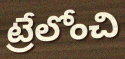
ట్రేలోంచి